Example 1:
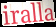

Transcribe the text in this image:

iralla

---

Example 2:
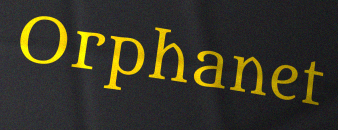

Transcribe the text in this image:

Orphanet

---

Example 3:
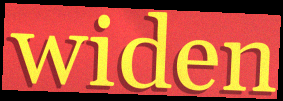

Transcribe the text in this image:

widen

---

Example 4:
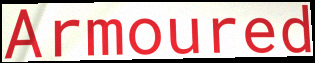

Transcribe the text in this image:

Armoured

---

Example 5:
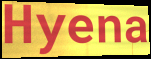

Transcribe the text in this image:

Hyena